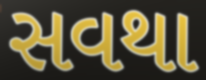
સવથા